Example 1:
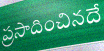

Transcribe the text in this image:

ప్రసాదించినదే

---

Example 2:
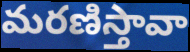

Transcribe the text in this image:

మరణిస్తావా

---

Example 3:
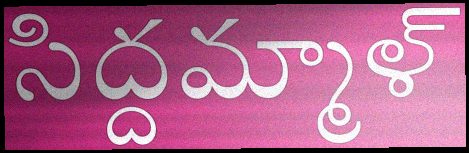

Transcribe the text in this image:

సిద్దమ్మాళ్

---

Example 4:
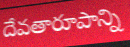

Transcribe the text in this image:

దేవతారూపాన్ని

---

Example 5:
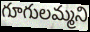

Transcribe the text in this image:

గూగులమ్మని